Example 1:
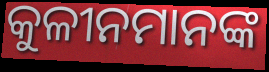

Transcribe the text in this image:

କୁଳୀନମାନଙ୍କ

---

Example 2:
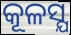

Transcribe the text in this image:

କୂଳସ୍ଯ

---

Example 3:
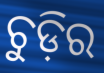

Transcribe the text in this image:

ଚୁଡ଼ିର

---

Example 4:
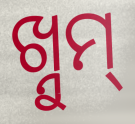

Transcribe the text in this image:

ଖ୍ନୁମ୍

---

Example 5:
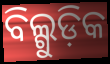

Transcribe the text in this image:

ବିଲ୍ଗୁଡ଼ିକ